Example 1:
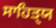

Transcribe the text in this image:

ਸਾਹਿਤੑਯ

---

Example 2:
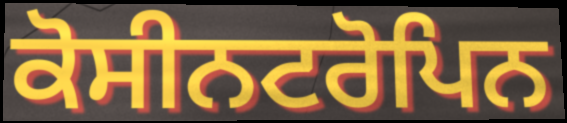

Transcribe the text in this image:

ਕੋਸੀਨਟਰੋਪਿਨ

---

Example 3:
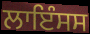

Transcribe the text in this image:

ਲਾਇੰਸਸ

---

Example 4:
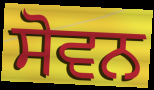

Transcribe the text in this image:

ਸੋਵਨ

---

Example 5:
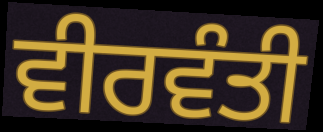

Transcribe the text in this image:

ਵੀਰਵੰਤੀ